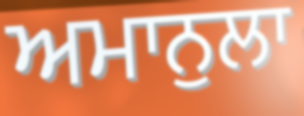
ਅਮਾਨੁਲਾ